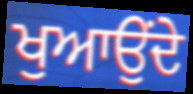
ਖੁਆਉਂਦੇ